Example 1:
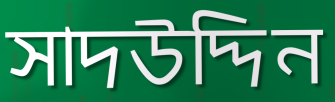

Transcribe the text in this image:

সাদউদ্দিন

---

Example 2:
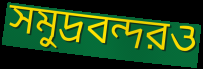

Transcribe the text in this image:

সমুদ্রবন্দরও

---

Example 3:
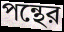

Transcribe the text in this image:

পন্থের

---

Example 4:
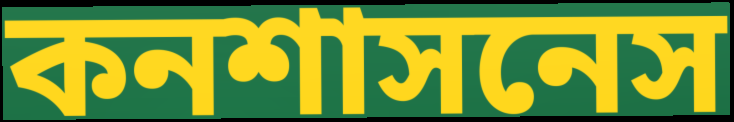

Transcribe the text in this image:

কনশাসনেস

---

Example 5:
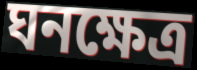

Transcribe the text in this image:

ঘনক্ষেত্র